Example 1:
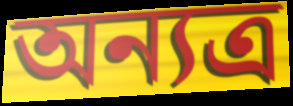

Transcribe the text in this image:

অন্যত্ৰ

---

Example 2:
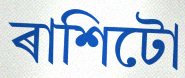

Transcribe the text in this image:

ৰাশিটো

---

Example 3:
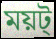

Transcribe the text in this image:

ময়ট্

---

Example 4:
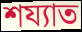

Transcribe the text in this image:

শয্যাত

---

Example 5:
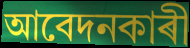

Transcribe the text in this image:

আবেদনকাৰী